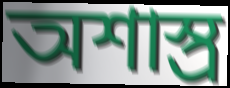
অশাস্ত্র